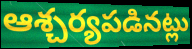
ఆశ్చర్యపడినట్లు